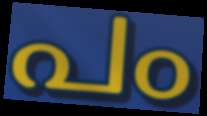
പം